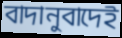
বাদানুবাদেই